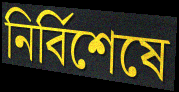
নির্বিশেষে